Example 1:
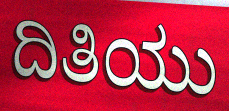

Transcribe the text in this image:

ದಿತಿಯು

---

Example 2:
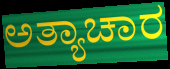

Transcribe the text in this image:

ಅತ್ಯಾಚಾರ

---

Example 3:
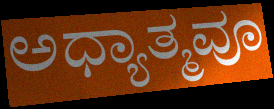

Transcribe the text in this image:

ಅಧ್ಯಾತ್ಮವೂ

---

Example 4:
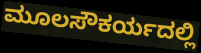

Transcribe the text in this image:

ಮೂಲಸೌಕರ್ಯದಲ್ಲಿ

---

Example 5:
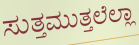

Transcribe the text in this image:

ಸುತ್ತಮುತ್ತಲೆಲ್ಲಾ